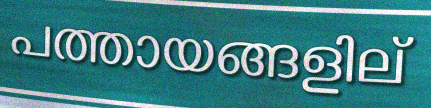
പത്തായങ്ങളില്